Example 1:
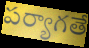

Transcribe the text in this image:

పర్యాగతే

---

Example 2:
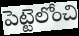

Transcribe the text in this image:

పెట్టెలోంచి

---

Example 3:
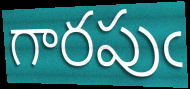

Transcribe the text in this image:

గారపుఁ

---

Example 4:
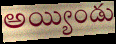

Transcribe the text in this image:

అయ్యిండు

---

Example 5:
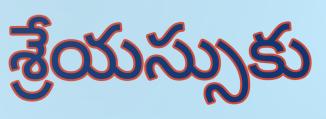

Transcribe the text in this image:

శ్రేయస్సుకు